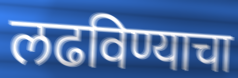
लढविण्याचा